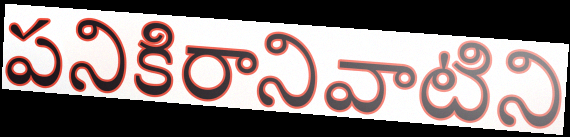
పనికిరానివాటిని